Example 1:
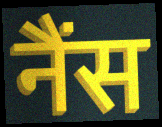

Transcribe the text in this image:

नैंस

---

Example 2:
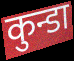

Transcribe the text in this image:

कुन्डा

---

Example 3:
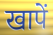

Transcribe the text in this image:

खापें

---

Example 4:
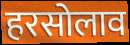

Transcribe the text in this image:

हरसोलाव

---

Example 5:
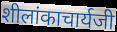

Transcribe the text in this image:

शीलांकाचार्यजी